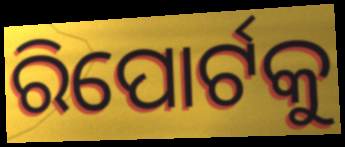
ରିପୋର୍ଟକୁ